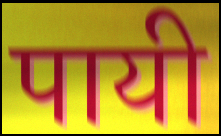
पायी